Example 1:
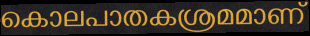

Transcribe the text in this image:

കൊലപാതകശ്രമമാണ്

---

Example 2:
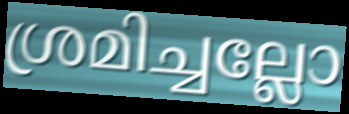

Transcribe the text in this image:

ശ്രമിച്ചല്ലോ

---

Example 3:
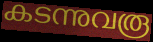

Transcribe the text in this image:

കടന്നുവരൂ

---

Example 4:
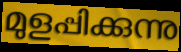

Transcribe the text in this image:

മുളപ്പിക്കുന്നു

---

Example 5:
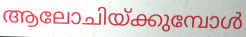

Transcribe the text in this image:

ആലോചിയ്ക്കുമ്പോൾ